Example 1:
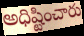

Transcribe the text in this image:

అధిష్టించారు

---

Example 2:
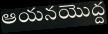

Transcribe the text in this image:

ఆయనయొద్ద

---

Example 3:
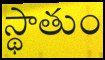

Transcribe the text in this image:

స్థాతుం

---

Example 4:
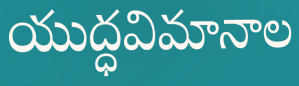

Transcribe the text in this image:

యుద్ధవిమానాల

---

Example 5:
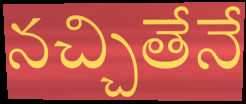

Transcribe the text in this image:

నచ్చితేనే